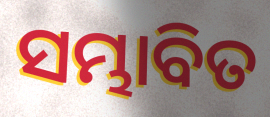
ସମ୍ଭାବିତ